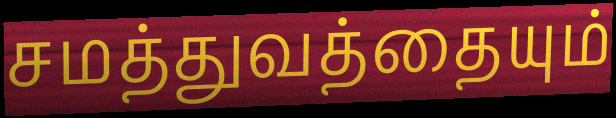
சமத்துவத்தையும்